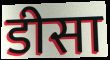
डीसा